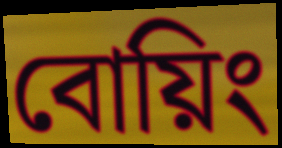
বোয়িং